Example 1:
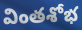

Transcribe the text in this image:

వింతశోభ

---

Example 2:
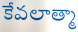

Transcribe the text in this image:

కేవలాత్మా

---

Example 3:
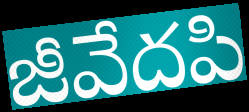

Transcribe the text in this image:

జీవేదపి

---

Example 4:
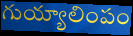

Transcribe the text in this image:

గుయ్యాలింపం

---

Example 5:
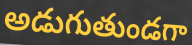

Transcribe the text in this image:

అడుగుతుండగా